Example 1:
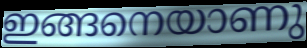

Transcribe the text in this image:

ഇങ്ങനെയാണു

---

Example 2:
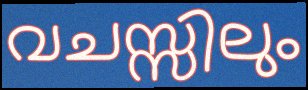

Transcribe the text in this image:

വചസ്സിലും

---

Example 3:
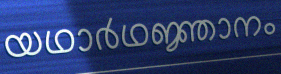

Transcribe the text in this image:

യഥാർഥജ്ഞാനം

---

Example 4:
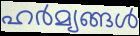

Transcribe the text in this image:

ഹർമ്യങ്ങൾ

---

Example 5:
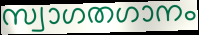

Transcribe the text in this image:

സ്വാഗതഗാനം